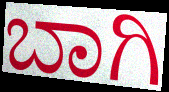
ಬಾಗಿ